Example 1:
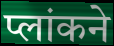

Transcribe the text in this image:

प्लांकने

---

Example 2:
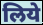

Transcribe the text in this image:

लिये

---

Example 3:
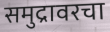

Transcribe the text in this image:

समुद्रावरचा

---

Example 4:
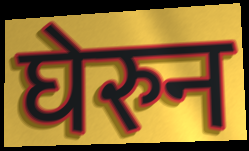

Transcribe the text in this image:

घेरुन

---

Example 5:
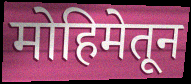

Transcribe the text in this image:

मोहिमेतून